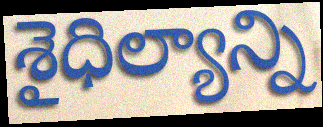
శైధిల్యాన్ని